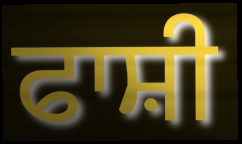
ਫਾਸ਼ੀ